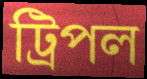
ট্রিপল